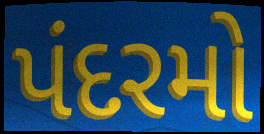
પંદરમો